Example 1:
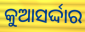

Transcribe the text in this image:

କୁଆସର୍ଦ୍ଦାର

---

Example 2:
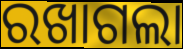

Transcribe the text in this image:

ରଖାଗଲା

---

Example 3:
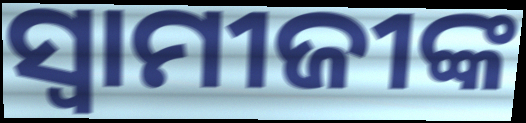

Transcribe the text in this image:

ସ୍ୱାମୀଜୀଙ୍କ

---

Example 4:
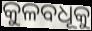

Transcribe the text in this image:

କୁଳବଧୂକୁ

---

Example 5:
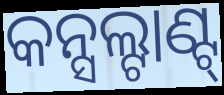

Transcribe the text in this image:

କନ୍ସଲ୍ଟାଣ୍ଟ୍